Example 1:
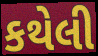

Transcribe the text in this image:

કથેલી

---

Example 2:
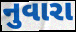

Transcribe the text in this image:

નુવારા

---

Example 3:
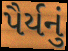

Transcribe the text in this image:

પૈર્યનું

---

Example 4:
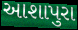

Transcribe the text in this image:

આશાપુરા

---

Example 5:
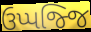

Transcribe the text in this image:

ઉપ્પજ્જિ